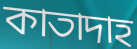
কাতাদাহ